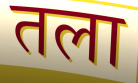
तला